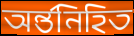
অর্ন্তনিহিত